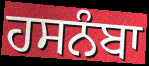
ਹਸਨੰਬਾ